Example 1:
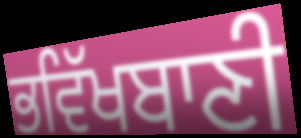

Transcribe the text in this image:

ਭਵਿੱਖਬਾਣੀ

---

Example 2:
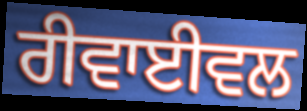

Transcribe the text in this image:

ਰੀਵਾਈਵਲ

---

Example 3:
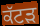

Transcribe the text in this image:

ਕੱਟੜ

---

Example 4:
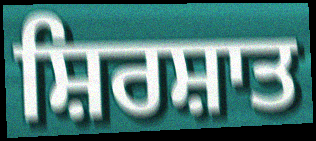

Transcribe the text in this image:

ਸ਼ਿਰਸ਼ਾਤ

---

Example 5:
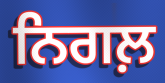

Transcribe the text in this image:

ਨਿਗਲ਼